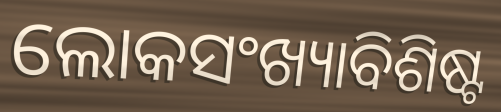
ଲୋକସଂଖ୍ୟାବିଶିଷ୍ଟ